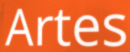
Artes